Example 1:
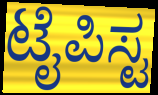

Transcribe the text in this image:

ಟೈಪಿಸ್ಟ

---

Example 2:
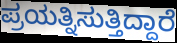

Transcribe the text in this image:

ಪ್ರಯತ್ನಿಸುತ್ತಿದ್ದಾರೆ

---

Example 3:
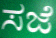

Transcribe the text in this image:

ಸಜೆ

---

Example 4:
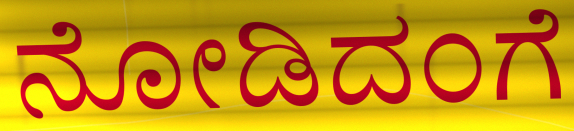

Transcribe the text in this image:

ನೋಡಿದಂಗೆ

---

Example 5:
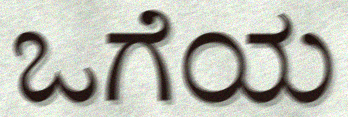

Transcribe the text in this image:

ಒಗೆಯ